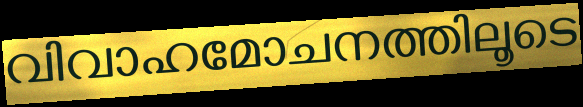
വിവാഹമോചനത്തിലൂടെ